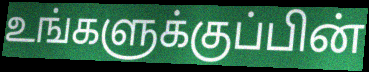
உங்களுக்குப்பின்